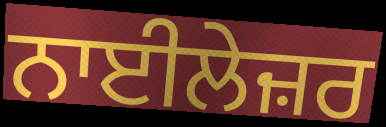
ਨਾਈਲੇਜ਼ਰ